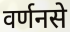
वर्णनसे